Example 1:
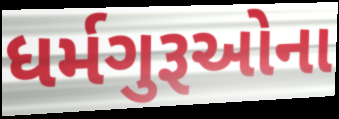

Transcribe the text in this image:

ધર્મગુરૂઓના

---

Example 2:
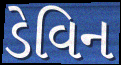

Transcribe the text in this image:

ડેવિન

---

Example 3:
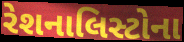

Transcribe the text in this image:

રેશનાલિસ્ટોના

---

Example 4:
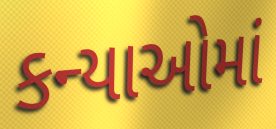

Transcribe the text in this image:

કન્યાઓમાં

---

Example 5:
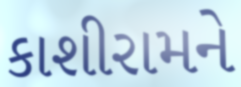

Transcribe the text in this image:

કાશીરામને